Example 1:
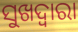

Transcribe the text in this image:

ସୁଖଦ୍ଵାରା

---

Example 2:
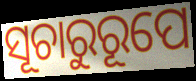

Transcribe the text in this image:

ସୂଚାରୁରୂପେ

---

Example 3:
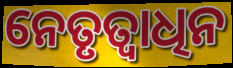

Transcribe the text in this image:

ନେତୃତ୍ୱାଧିନ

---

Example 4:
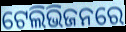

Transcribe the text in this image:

ଟେଲିଭିଜନରେ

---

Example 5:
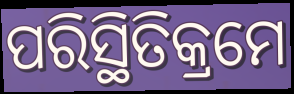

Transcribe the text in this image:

ପରିସ୍ଥିତିକ୍ରମେ